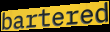
bartered